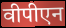
वीपीएन